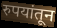
रुपयांतून